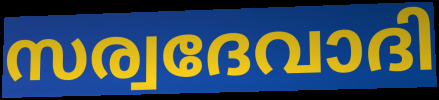
സര്വദേവാദി